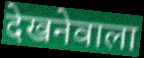
देखनेवाला